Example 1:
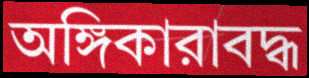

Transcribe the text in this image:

অঙ্গিকারাবদ্ধ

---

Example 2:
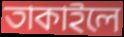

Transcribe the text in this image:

তাকাইলে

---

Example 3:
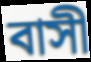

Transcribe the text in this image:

বাসী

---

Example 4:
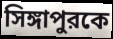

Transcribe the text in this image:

সিঙ্গাপুরকে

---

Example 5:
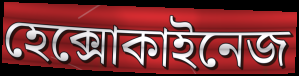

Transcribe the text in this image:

হেক্সোকাইনেজ